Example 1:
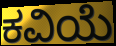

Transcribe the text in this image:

ಕವಿಯೆ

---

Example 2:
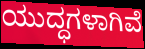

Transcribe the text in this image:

ಯುದ್ಧಗಳಾಗಿವೆ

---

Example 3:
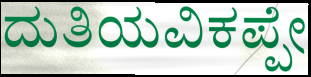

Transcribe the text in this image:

ದುತಿಯವಿಕಪ್ಪೇ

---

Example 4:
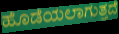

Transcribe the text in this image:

ಹೊಡೆಯಲಾಗುತ್ತದೆ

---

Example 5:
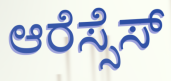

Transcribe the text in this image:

ಆರೆಸ್ಸೆಸ್